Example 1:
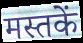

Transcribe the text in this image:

मस्तकें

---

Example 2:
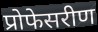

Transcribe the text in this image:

प्रोफेसरीण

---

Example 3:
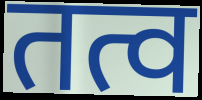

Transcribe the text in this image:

तत्व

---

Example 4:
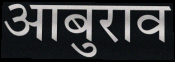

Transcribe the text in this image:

आबुराव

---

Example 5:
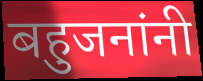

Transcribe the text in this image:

बहुजनांनी